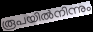
രൂപയിൽനിന്നും